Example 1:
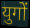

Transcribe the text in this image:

युगों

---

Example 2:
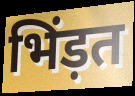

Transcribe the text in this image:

भिंड़त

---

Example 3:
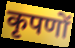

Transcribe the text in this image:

कृपणों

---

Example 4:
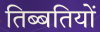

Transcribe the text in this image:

तिब्बतियों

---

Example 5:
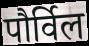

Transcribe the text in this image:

पौर्विल